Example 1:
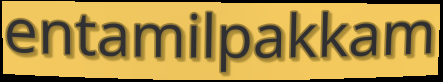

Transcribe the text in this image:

entamilpakkam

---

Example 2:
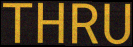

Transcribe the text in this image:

THRU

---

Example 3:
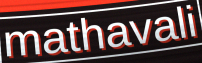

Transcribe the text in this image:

mathavali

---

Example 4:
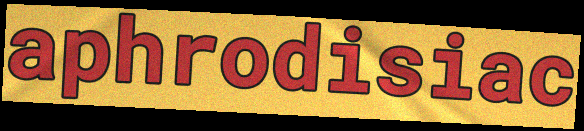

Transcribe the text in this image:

aphrodisiac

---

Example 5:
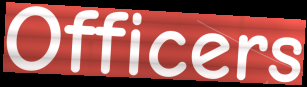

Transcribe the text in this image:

Officers